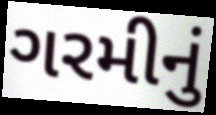
ગરમીનું